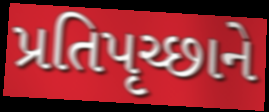
પ્રતિપૃચ્છાને